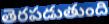
తెరపడుతుంది